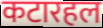
कटारहल